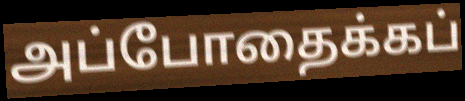
அப்போதைக்கப்